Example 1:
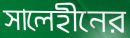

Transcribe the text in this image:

সালেহীনের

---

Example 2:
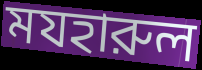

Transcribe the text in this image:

মযহারুল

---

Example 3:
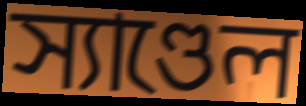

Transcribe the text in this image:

স্যাণ্ডেল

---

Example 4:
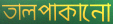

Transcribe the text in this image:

তালপাকানো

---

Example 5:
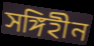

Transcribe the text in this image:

সঙ্গিহীন